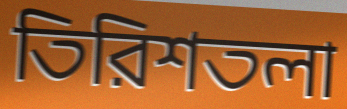
তিরিশতলা